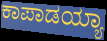
ಕಾಪಾಡಯ್ಯಾ